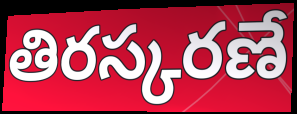
తిరస్కరణే